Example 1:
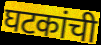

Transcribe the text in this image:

घटकांची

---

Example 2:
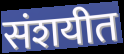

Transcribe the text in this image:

संशयीत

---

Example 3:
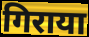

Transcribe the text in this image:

गिराया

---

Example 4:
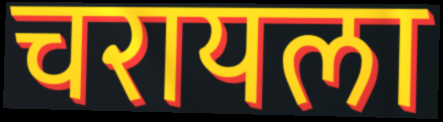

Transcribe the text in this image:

चरायला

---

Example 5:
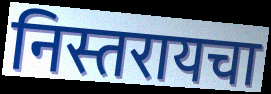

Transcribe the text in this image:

निस्तरायचा